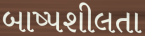
બાષ્પશીલતા